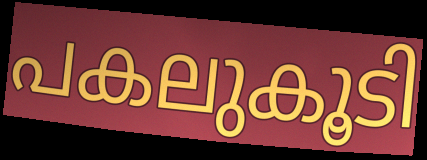
പകലുകൂടി